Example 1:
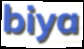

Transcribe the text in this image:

biya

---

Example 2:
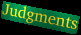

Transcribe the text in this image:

Judgments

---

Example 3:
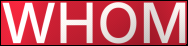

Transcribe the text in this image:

WHOM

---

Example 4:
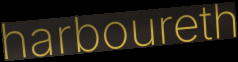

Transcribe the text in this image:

harboureth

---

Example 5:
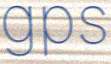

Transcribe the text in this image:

gps